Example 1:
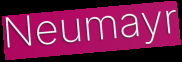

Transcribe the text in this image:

Neumayr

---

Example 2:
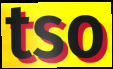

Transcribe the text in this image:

tso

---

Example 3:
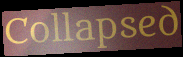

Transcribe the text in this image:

Collapsed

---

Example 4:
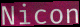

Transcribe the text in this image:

Nicon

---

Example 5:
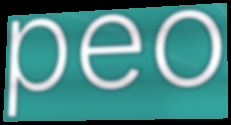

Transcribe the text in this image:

peo